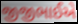
જીજીભાઈએ